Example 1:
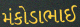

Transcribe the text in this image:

મંકોડાભાઈ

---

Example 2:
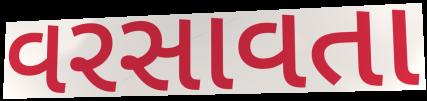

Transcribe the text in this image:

વરસાવતા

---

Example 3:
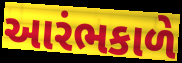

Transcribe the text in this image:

આરંભકાળે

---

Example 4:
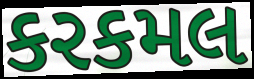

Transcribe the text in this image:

કરકમલ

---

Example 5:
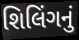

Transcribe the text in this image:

શિલિંગનું